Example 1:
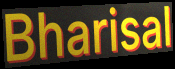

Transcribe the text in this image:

Bharisal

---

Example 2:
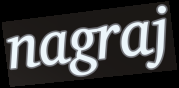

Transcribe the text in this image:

nagraj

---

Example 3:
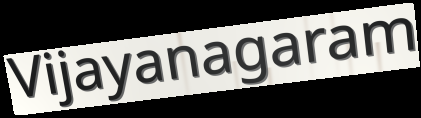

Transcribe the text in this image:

Vijayanagaram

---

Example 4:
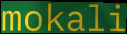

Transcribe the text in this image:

mokali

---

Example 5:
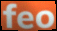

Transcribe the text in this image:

feo